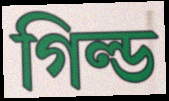
গিল্ড